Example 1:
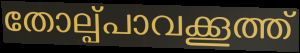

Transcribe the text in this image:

തോല്പ്പാവക്കൂത്ത്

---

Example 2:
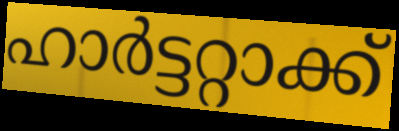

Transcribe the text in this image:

ഹാർട്ടറ്റാക്ക്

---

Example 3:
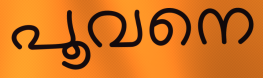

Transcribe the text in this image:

പൂവനെ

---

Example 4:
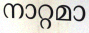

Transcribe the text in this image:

നാറ്റമാ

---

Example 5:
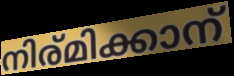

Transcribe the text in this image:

നിര്മിക്കാന്